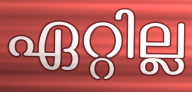
ഏറ്റില്ല